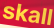
skall